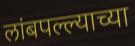
लांबपल्ल्याच्या